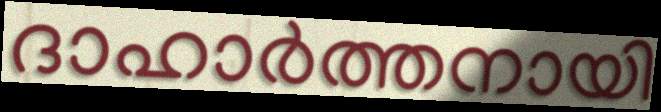
ദാഹാർത്തനായി